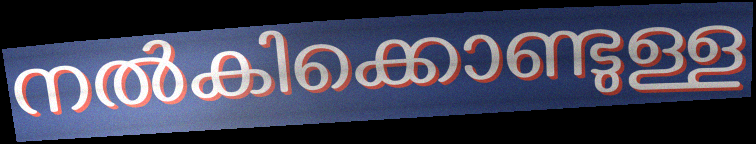
നൽകിക്കൊണ്ടുള്ള